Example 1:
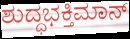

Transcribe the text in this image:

ಶುದ್ಧಭಕ್ತಿಮಾನ್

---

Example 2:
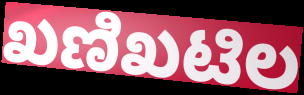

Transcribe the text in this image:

ಖಣಿಖಟಿಲ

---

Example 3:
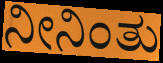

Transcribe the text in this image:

ನೀನಿಂತು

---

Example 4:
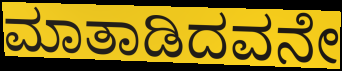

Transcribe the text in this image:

ಮಾತಾಡಿದವನೇ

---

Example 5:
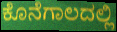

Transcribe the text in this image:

ಕೊನೆಗಾಲದಲ್ಲಿ